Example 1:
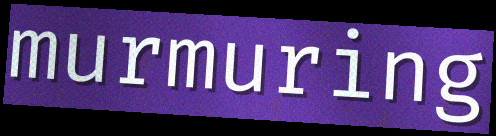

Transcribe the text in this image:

murmuring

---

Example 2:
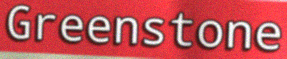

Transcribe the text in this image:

Greenstone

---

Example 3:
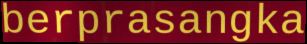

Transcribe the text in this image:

berprasangka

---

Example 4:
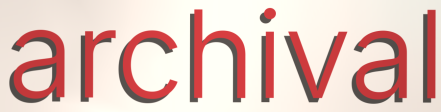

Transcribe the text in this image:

archival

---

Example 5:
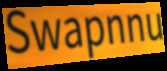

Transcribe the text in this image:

Swapnnu